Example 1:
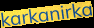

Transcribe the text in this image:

karkanirka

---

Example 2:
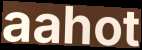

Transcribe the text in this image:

aahot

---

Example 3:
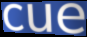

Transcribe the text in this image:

cue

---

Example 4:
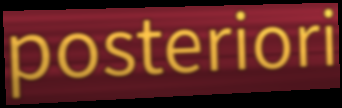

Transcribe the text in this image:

posteriori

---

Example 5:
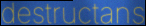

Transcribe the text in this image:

destructans